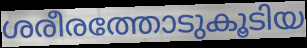
ശരീരത്തോടുകൂടിയ